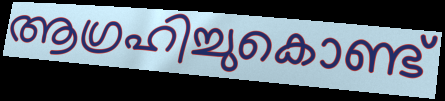
ആഗ്രഹിച്ചുകൊണ്ട്